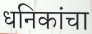
धनिकांचा